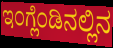
ಇಂಗ್ಲೆಂಡಿನಲ್ಲಿನ